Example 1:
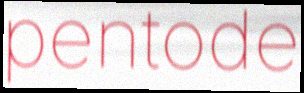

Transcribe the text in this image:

pentode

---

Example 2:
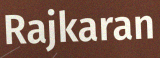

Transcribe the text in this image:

Rajkaran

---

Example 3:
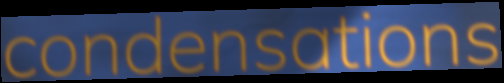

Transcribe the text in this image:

condensations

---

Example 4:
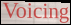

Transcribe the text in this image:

Voicing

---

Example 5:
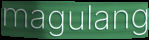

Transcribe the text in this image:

magulang